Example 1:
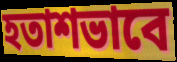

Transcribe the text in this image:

হতাশভাবে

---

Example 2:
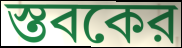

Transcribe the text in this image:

স্তবকের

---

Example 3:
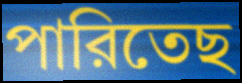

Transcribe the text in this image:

পারিতেছ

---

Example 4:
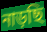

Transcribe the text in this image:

নাড়ছি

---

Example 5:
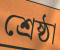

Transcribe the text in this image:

শ্রেষ্ঠা